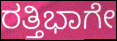
ರತ್ತಿಭಾಗೇ